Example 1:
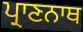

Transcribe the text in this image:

ਪ੍ਰਾਣਨਾਥ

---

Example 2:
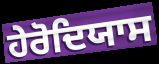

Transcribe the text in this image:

ਹੇਰੋਦਿਯਾਸ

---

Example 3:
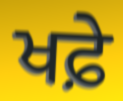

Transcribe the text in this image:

ਖਫ਼ੇ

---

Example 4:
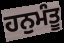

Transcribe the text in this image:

ਹਨੁਮੰਤੂ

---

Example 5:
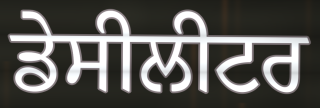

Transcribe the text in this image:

ਡੇਸੀਲੀਟਰ